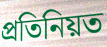
প্ৰতিনিয়ত